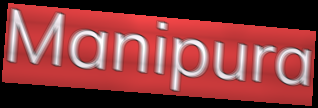
Manipura